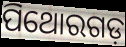
ପିଥୋରଗଡ଼